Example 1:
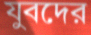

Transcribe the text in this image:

যুবদের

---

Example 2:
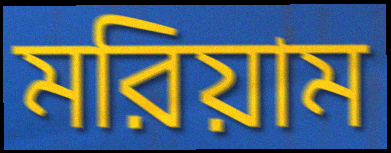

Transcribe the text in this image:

মরিয়াম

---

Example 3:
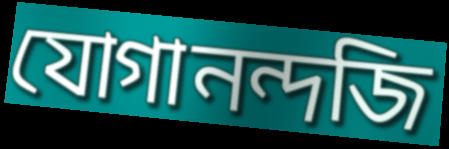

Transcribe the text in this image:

যোগানন্দজি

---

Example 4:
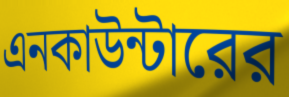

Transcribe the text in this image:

এনকাউন্টারের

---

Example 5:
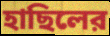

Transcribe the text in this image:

হাছিলের